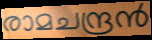
രാമചന്ദ്രൻ